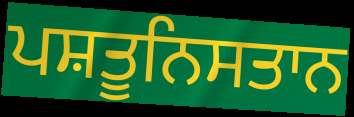
ਪਸ਼ਤੂਨਿਸਤਾਨ